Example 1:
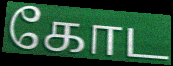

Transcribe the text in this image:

கோட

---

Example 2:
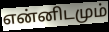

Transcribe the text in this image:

என்னிடமும்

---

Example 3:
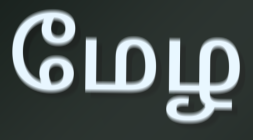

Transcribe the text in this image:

மேழ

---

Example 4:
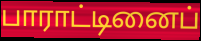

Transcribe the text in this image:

பாராட்டினைப்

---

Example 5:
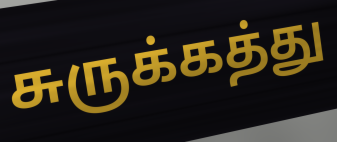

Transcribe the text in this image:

சுருக்கத்து